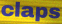
claps